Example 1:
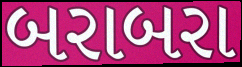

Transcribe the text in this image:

બરાબરા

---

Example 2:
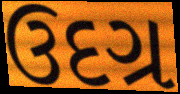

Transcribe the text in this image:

ઉદગ્ર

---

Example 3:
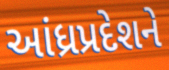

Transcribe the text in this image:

આંધ્રપ્રદેશને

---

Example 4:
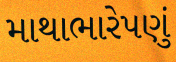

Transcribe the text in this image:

માથાભારેપણું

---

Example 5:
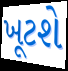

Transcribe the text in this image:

ખૂટશે